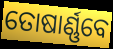
ତୋଷାର୍ଣ୍ଣବେ